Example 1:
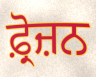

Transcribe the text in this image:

ਫ਼੍ਰੋਜ਼ਨ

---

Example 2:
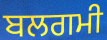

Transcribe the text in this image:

ਬਲਗਮੀ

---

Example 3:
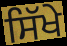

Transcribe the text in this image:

ਸਿੱਖੇ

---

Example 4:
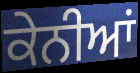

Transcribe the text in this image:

ਕੇਨੀਆਂ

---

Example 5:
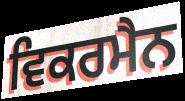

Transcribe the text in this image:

ਵਿਕਰਮੈਨ